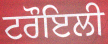
ਟਰੌਇਲੀ